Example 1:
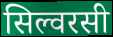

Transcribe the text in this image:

सिल्वरसी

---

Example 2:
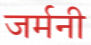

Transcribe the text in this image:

जर्मनी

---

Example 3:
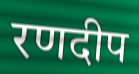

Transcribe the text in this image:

रणदीप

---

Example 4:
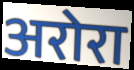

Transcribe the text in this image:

अरोरा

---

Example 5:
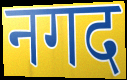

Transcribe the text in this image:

नगद